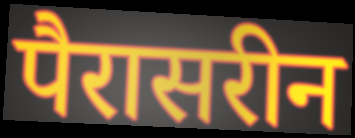
पैरासरीन